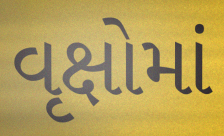
વૃક્ષોમાં